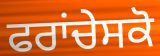
ਫਰਾਂਚੇਸਕੋ